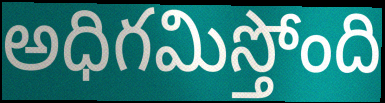
అధిగమిస్తోంది